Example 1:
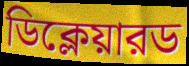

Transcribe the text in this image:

ডিক্লেয়ারড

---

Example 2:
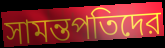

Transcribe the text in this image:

সামন্তপতিদের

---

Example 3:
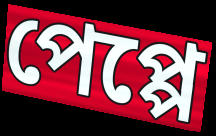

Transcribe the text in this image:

পেপ্পে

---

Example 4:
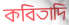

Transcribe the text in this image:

কবিতাদি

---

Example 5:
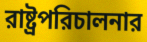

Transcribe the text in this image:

রাষ্ট্রপরিচালনার